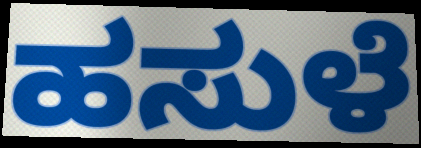
ಹಸುಳೆ